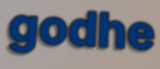
godhe